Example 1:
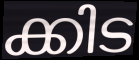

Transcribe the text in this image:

ക്കിട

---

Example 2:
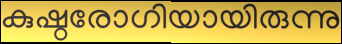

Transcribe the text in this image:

കുഷ്ഠരോഗിയായിരുന്നു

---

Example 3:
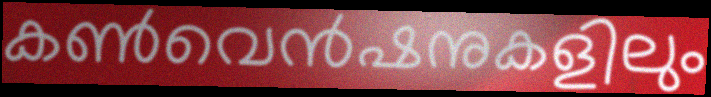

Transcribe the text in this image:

കൺവെൻഷനുകളിലും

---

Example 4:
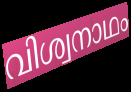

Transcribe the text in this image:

വിശ്വനാഥം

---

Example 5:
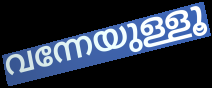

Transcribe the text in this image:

വന്നേയുള്ളൂ